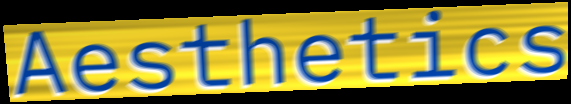
Aesthetics